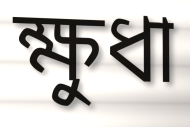
ক্ষুধা